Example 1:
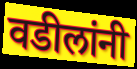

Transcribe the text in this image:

वडीलांनी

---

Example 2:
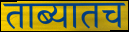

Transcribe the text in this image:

ताब्यातच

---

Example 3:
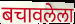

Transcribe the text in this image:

बचावलेला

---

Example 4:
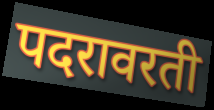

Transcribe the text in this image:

पदरावरती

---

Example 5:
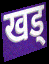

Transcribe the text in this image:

खड्